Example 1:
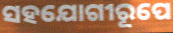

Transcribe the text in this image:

ସହଯୋଗୀରୂପେ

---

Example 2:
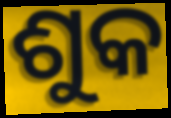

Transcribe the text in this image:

ଶୁକ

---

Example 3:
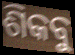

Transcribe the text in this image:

ଶିକବୁ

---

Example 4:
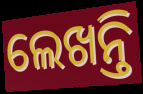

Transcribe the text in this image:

ଲେଖନ୍ତି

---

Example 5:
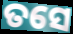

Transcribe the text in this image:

ତସେ